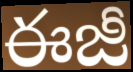
ఈజీ